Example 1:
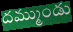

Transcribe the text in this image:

దమ్ముండు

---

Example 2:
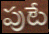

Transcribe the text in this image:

పుటే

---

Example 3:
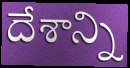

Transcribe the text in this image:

దేశాన్ని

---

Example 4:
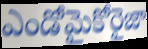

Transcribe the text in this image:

ఎండోమైకోరైజా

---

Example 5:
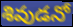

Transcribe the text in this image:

శివుడనో